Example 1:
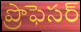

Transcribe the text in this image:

ప్రొఫెసర్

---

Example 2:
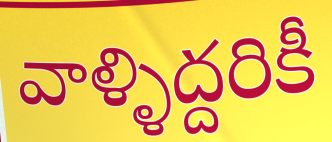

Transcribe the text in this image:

వాళ్ళిద్దరికీ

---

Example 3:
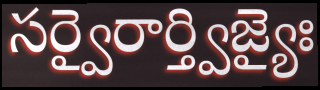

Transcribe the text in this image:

సర్వైరార్త్విజ్యైః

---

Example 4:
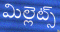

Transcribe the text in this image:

మిల్లెట్స్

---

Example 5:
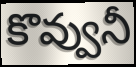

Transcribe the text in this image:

కొవ్వునీ